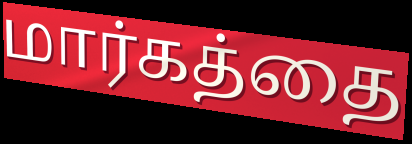
மார்கத்தை